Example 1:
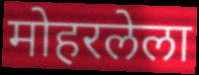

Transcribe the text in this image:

मोहरलेला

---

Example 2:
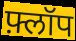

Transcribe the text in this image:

फ़्लॉप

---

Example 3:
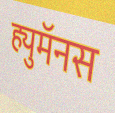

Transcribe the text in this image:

ह्युमॅनस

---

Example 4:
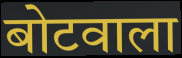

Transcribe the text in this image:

बोटवाला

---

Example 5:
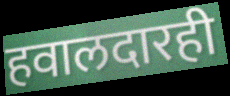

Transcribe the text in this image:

हवालदारही